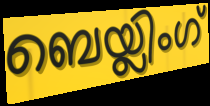
ബെയ്ലിംഗ്